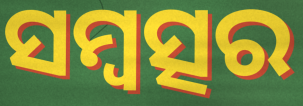
ସମ୍ବତ୍ସର